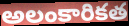
అలంకారికత